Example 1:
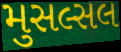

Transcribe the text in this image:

મુસલ્સલ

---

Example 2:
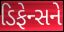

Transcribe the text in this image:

ડિફેન્સને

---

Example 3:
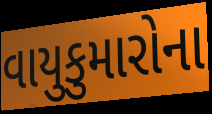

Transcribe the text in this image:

વાયુકુમારોના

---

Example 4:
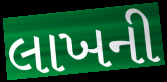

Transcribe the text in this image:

લાખની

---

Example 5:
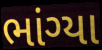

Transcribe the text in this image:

ભાંગ્યા